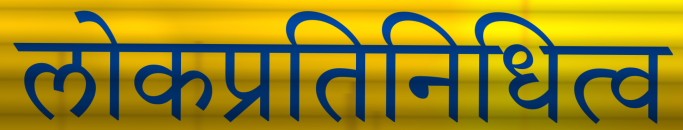
लोकप्रतिनिधित्व